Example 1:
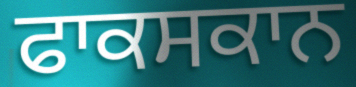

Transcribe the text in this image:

ਫਾਕਸਕਾਨ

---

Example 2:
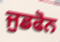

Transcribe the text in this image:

ਜੁਡਫੋਨ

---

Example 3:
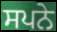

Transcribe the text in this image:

ਸਪਨੇ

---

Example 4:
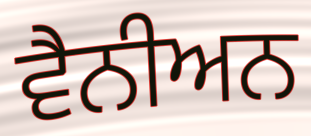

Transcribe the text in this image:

ਵੈਨੀਅਨ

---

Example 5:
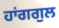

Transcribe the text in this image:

ਹਾਂਗਗੁਲ